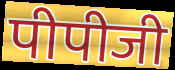
पीपीजी